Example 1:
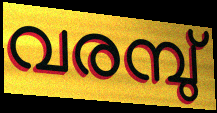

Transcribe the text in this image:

വരമ്പു്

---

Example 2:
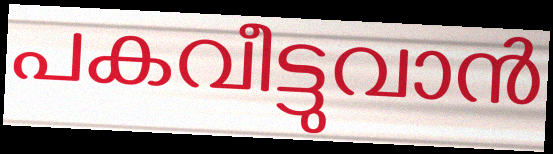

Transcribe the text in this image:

പകവീട്ടുവാൻ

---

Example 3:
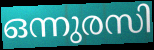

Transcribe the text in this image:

ഒന്നുരസി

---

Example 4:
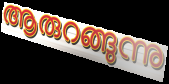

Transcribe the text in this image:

ആരുറങ്ങുന്നു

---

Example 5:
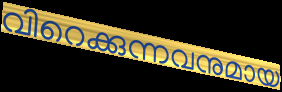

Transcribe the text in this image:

വിറെക്കുന്നവനുമായ